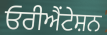
ਓਰੀਐਂਟੇਸ਼ਨ